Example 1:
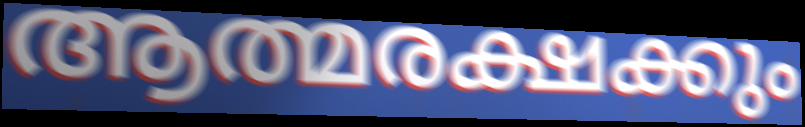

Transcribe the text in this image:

ആത്മരക്ഷക്കും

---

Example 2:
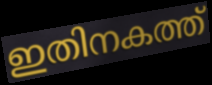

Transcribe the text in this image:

ഇതിനകത്ത്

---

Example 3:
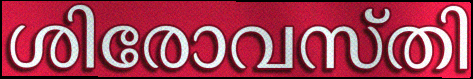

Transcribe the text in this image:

ശിരോവസ്തി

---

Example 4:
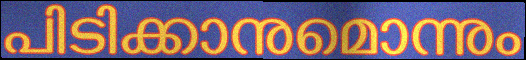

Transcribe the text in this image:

പിടിക്കാനുമൊന്നും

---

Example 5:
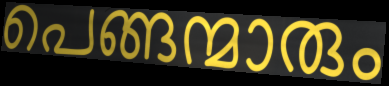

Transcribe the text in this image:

പെങ്ങന്മാരും